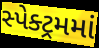
સ્પેક્ટ્રમમાં